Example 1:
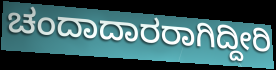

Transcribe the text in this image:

ಚಂದಾದಾರರಾಗಿದ್ದೀರಿ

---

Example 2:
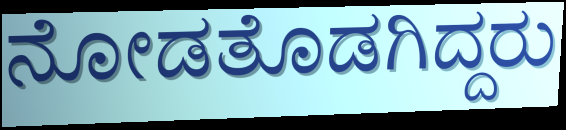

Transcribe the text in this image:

ನೋಡತೊಡಗಿದ್ದರು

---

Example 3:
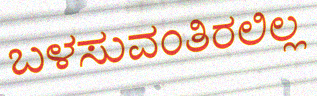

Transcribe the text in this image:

ಬಳಸುವಂತಿರಲಿಲ್ಲ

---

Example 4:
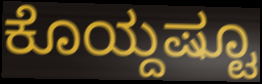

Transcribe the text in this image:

ಕೊಯ್ದಷ್ಟೂ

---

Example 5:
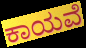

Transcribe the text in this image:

ಕಾಯವೆ